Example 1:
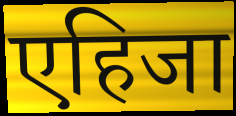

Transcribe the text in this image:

एहिजा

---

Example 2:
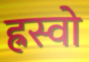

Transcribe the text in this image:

ह्रस्वो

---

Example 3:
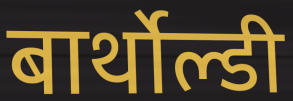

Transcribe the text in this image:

बार्थोल्डी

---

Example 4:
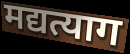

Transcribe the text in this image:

मद्यत्याग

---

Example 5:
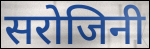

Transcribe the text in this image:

सरोजिनी